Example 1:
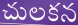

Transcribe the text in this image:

చులకన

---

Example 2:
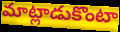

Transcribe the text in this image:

మాట్లాడుకొంటా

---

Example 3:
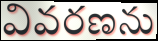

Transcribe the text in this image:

వివరణను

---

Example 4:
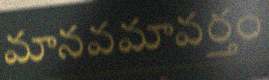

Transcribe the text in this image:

మానవమావర్తం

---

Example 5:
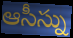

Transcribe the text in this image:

ఆసీస్ను